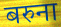
बरुना